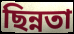
ছিন্নতা